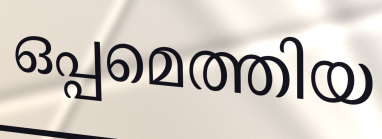
ഒപ്പമെത്തിയ